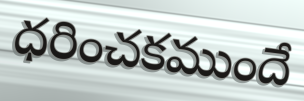
ధరించకముందే